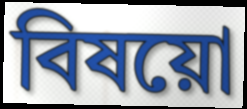
বিষয়ো